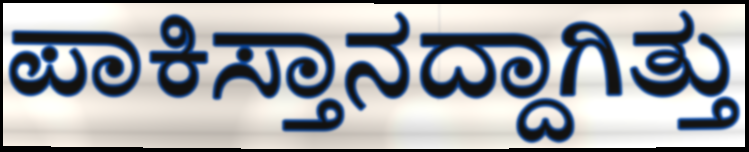
ಪಾಕಿಸ್ತಾನದ್ದಾಗಿತ್ತು